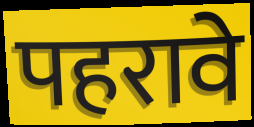
पहरावे